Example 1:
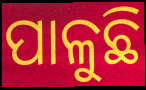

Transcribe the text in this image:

ପାଳୁଛି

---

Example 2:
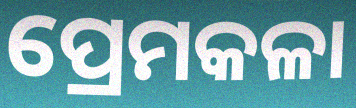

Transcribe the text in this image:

ପ୍ରେମକଳା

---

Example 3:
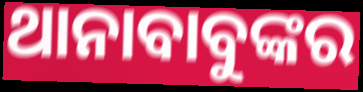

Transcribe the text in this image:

ଥାନାବାବୁଙ୍କର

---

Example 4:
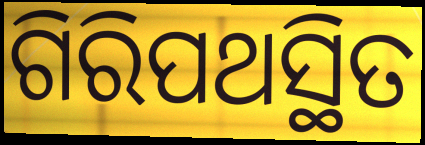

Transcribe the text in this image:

ଗିରିପଥସ୍ଥିତ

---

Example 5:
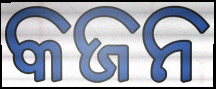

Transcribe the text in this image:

କଜନ